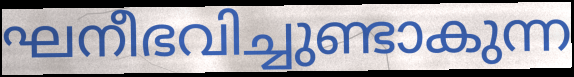
ഘനീഭവിച്ചുണ്ടാകുന്ന